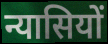
न्यासियों